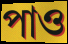
পাও